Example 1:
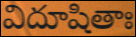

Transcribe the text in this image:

విదూషితాః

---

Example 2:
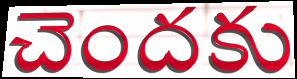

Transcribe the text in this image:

చెందకు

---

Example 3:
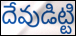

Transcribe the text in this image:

దేవుడిట్టి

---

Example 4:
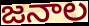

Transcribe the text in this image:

జనాల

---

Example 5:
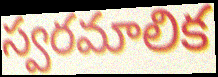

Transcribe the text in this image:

స్వరమాలిక